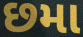
છમા